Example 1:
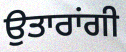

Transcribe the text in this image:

ਉਤਾਰਾਂਗੀ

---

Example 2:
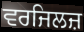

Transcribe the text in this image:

ਵਰਜਿਲਜ਼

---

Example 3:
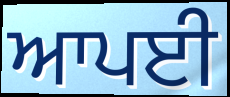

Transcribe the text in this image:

ਆਪਈ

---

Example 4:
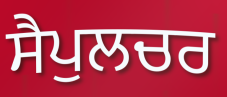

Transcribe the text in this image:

ਸੈਪੁਲਚਰ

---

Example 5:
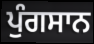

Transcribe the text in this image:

ਪੁੰਗਸਾਨ